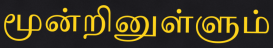
மூன்றினுள்ளும்